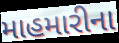
માહમારીના